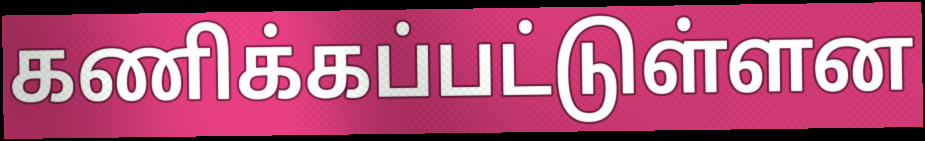
கணிக்கப்பட்டுள்ளன